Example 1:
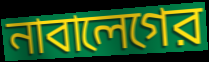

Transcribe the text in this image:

নাবালেগের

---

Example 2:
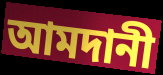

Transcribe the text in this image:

আমদানী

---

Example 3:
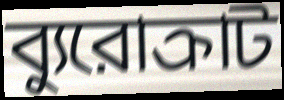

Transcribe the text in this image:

ব্যুরোক্রাট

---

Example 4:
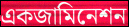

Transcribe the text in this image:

একজামিনেশন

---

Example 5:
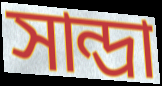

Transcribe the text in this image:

সান্দ্রা